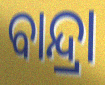
ବାନ୍ଦ୍ରା